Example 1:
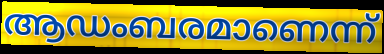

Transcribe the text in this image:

ആഡംബരമാണെന്ന്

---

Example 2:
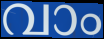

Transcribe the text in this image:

വാം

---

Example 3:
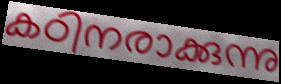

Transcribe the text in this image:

കഠിനരാക്കുന്നു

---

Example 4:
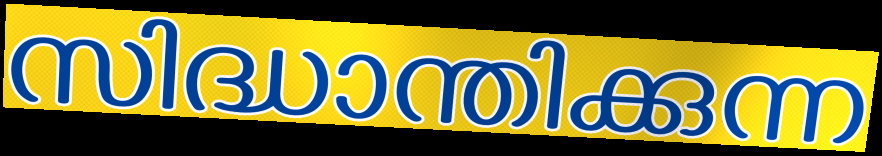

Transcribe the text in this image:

സിദ്ധാന്തിക്കുന്ന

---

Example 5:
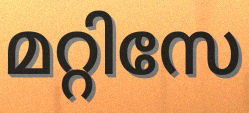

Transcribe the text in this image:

മറ്റിസേ